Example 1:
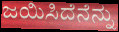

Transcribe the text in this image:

ಜಯಿಸಿದೆನೆನ್ನು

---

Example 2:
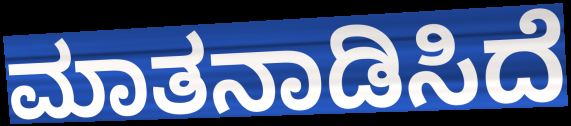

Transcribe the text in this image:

ಮಾತನಾಡಿಸಿದೆ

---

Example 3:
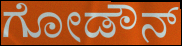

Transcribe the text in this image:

ಗೋಡೌನ್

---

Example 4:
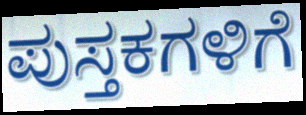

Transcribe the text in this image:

ಪುಸ್ತಕಗಳಿಗೆ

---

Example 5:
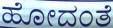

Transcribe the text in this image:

ಹೋದಂತೆ